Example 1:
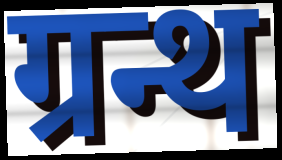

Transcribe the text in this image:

ग्रन्थ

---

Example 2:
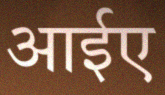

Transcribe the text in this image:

आईए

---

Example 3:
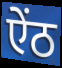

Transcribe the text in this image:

ऐंठ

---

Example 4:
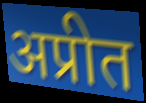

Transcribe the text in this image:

अप्रीत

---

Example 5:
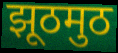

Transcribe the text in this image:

झूठमुठ